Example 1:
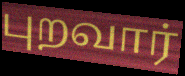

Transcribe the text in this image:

புறவார்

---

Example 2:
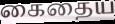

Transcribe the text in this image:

கைதைய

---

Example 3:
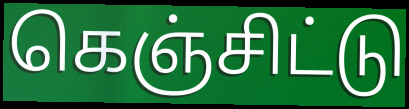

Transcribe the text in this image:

கெஞ்சிட்டு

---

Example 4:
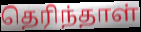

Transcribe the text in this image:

தெரிந்தாள்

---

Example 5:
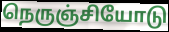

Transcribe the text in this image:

நெருஞ்சியோடு